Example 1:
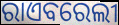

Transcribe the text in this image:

ରାଏବରେଲୀ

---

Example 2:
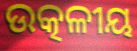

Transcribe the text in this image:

ଉତ୍କଳୀୟ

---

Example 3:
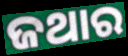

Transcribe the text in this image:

ଜଥାର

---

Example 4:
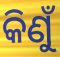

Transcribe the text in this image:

କିଣୁଁ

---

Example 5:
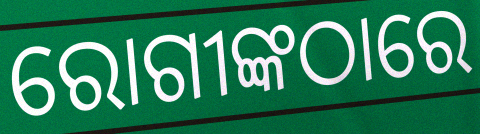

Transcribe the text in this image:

ରୋଗୀଙ୍କଠାରେ